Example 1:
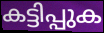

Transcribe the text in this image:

കട്ടിപ്പുക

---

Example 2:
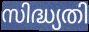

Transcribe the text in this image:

സിദ്ധ്യതി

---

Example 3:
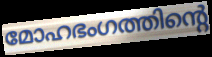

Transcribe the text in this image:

മോഹഭംഗത്തിന്റെ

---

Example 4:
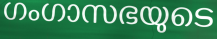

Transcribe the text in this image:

ഗംഗാസഭയുടെ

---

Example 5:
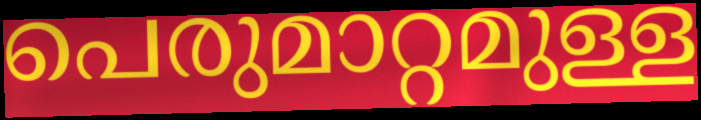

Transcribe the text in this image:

പെരുമാറ്റമുള്ള